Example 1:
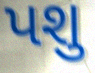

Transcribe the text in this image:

પશુ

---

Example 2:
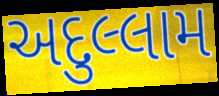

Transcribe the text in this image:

અદુલ્લામ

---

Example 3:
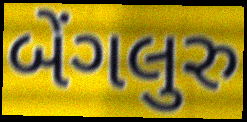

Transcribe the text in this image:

બેંગલુરુ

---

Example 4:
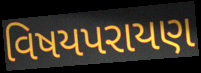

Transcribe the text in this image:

વિષયપરાયણ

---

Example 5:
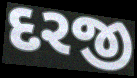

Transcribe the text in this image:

દરજી